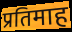
प्रतिमाह